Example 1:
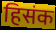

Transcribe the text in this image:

हिसंक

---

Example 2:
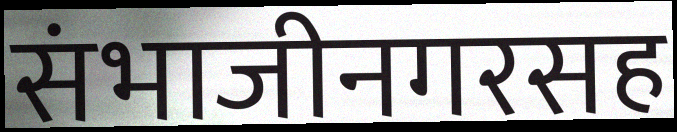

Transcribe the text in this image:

संभाजीनगरसह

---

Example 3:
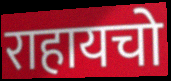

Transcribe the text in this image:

राहायचो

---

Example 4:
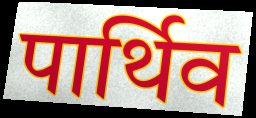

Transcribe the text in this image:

पार्थिव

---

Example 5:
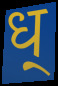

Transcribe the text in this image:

ध्